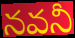
నవనీ